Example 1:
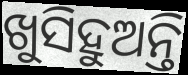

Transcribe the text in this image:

ଖୁସିହୁଅନ୍ତି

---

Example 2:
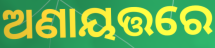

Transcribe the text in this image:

ଅଣାୟତ୍ତରେ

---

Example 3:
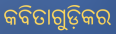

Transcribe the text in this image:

କବିତାଗୁଡ଼ିକର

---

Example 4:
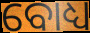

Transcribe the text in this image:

ବୋଧ୍ୟ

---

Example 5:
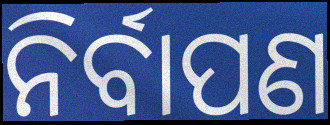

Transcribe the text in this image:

ନିର୍ବାପଣ